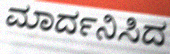
ಮಾರ್ದನಿಸಿದ